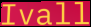
Ivall